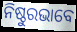
ନିଷ୍ଠୁରଭାବେ